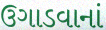
ઉગાડવાનાં